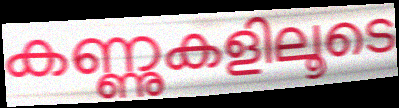
കണ്ണുകളിലൂടെ